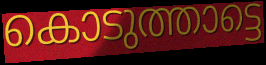
കൊടുത്താട്ടെ